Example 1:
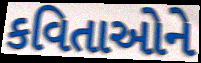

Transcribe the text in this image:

કવિતાઓને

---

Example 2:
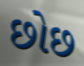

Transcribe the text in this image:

છોછ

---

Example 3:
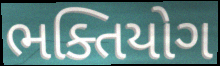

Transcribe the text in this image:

ભક્તિયોગ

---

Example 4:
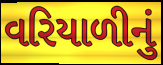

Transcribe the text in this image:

વરિયાળીનું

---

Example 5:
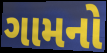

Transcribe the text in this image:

ગામનો